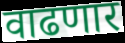
वाढणार